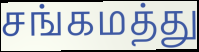
சங்கமத்து